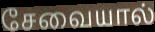
சேவையால்